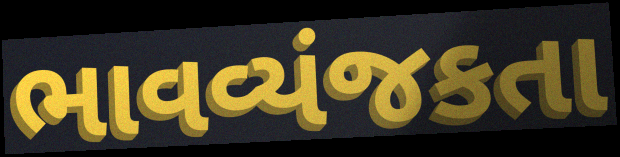
ભાવવ્યંજકતા